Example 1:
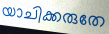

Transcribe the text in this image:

യാചിക്കരുതേ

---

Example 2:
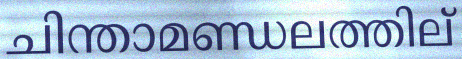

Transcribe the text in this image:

ചിന്താമണ്ഡലത്തില്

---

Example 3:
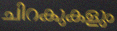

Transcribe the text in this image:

ചിറകുകളും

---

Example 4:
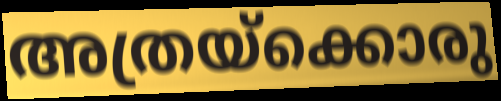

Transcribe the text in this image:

അത്രയ്ക്കൊരു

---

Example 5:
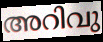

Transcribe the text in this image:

അറിവു